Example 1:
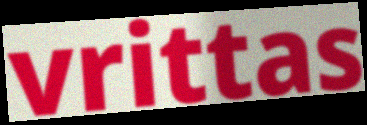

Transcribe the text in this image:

vrittas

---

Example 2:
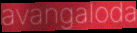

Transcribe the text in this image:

avangaloda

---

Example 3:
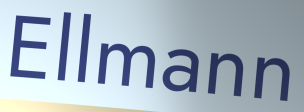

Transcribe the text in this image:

Ellmann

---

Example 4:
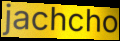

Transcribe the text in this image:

jachcho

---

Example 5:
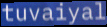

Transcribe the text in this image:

tuvaiyal